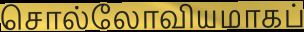
சொல்லோவியமாகப்